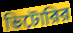
ভিটোরির